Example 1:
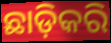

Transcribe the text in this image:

ଛାଡ଼ିକରି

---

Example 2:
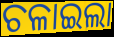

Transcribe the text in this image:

ଚଳାଇଲା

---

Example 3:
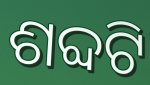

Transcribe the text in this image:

ଶବ୍ଦଟି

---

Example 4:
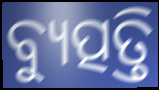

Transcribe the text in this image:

ବ୍ୟୁତ୍ପତ୍ତି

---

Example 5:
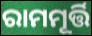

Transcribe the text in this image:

ରାମମୂର୍ତ୍ତି